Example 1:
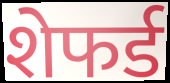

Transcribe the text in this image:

शेफर्ड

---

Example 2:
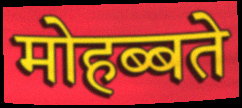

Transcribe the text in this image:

मोहब्बते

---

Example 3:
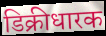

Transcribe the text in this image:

डिक्रीधारक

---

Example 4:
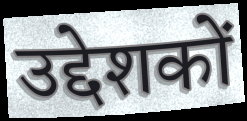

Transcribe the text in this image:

उद्देशकों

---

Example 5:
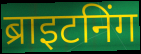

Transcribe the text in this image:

ब्राइटनिंग